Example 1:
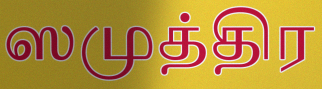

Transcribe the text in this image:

ஸமுத்திர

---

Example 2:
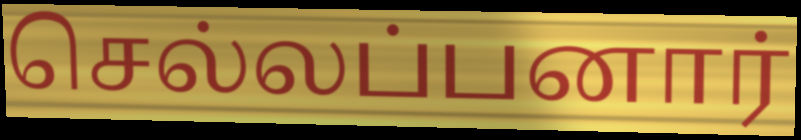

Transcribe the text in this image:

செல்லப்பனார்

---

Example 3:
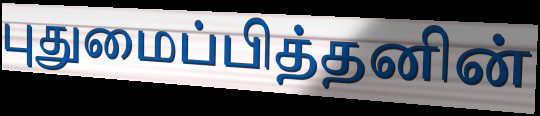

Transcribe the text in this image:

புதுமைப்பித்தனின்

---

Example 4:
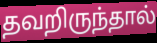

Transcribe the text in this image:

தவறிருந்தால்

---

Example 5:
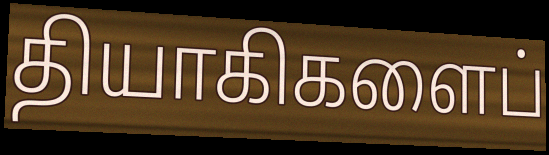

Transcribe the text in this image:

தியாகிகளைப்